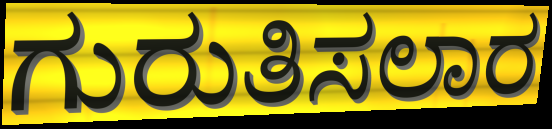
ಗುರುತಿಸಲಾರ